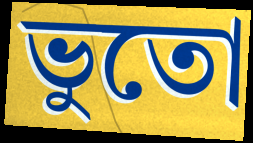
ভুতো